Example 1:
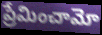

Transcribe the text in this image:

ప్రేమించామో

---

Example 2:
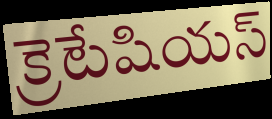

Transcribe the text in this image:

క్రెటేషియస్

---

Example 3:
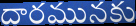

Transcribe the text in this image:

దారమునకు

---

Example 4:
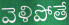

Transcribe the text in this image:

వెళిపోతే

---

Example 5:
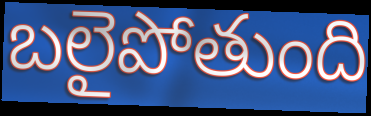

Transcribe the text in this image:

బలైపోతుంది